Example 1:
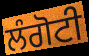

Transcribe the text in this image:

ਲੰਗੋਟੀ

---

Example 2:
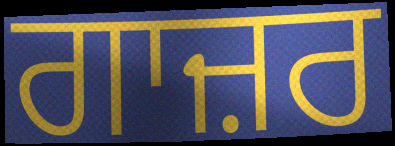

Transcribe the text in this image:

ਗਾਜ਼ਰ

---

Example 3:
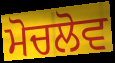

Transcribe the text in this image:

ਮੋਚਲੋਵ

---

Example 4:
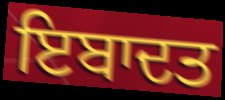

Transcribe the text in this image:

ਇਬਾਦਤ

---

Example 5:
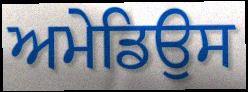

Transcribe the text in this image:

ਅਮੇਡਿਉਸ